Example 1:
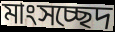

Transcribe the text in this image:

মাংসচ্ছেদ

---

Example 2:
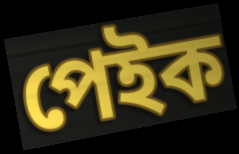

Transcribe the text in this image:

পেইক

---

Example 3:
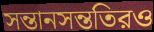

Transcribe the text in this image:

সন্তানসন্ততিরও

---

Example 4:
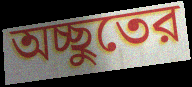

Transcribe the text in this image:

অচ্ছুতের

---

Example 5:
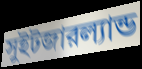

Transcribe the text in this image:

সুইটজারল্যান্ড